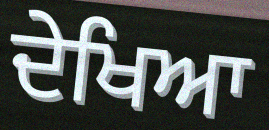
ਦੇਖਿਆ